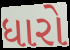
ધારો